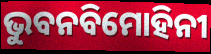
ଭୁବନବିମୋହିନୀ